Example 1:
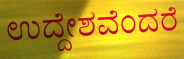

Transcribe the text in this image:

ಉದ್ದೇಶವೆಂದರೆ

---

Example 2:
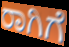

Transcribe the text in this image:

ರಾಗಿಗೆ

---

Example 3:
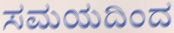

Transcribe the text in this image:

ಸಮಯದಿಂದ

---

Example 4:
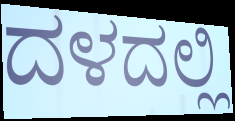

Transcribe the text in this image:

ದಳದಲ್ಲಿ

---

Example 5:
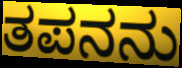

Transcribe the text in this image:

ತಪನನು